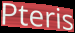
Pteris